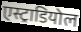
एस्ट्राडियोल